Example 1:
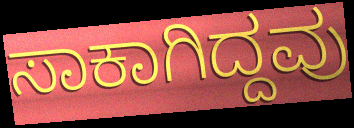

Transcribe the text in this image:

ಸಾಕಾಗಿದ್ದವು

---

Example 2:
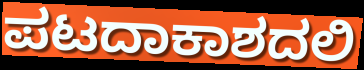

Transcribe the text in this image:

ಪಟದಾಕಾಶದಲಿ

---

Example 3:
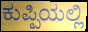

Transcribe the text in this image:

ಕುಪ್ಪಿಯಲ್ಲಿ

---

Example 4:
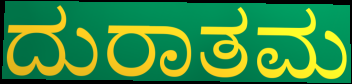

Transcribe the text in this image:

ದುರಾತಮ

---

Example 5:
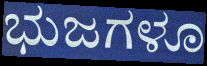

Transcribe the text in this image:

ಭುಜಗಳೂ